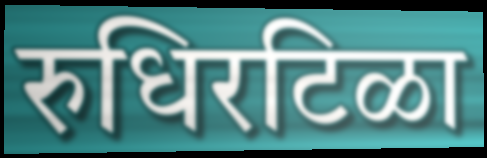
रुधिरटिळा